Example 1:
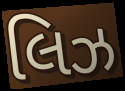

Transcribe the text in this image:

લિઝ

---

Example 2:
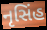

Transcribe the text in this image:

નૃસિંહ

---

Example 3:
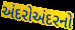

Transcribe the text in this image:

અંદરોઅંદરનો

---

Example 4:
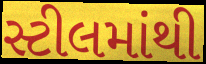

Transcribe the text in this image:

સ્ટીલમાંથી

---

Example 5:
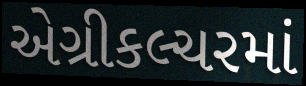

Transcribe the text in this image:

એગ્રીકલ્ચરમાં